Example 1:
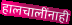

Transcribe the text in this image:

हालचालींनाही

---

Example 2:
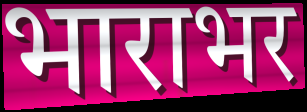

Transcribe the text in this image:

भाराभर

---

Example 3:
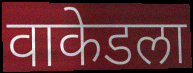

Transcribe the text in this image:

वाकेडला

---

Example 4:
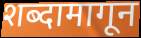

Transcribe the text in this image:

शब्दामागून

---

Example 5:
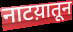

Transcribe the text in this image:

नाटय़ातून